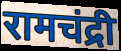
रामचंद्री